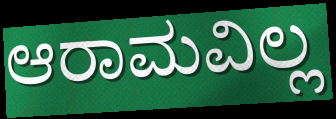
ಆರಾಮವಿಲ್ಲ